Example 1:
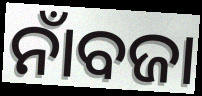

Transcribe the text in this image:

ନାଁବଜା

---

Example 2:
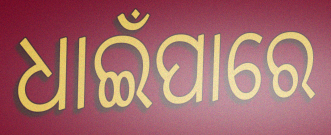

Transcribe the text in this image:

ଧାଇଁପାରେ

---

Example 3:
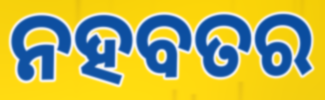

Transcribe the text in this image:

ନହବତର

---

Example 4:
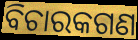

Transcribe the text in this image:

ବିଚାରକଗଣ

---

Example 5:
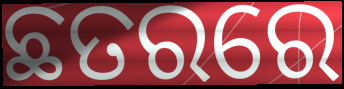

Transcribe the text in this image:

ଛତରରେ